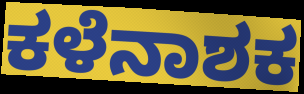
ಕಳೆನಾಶಕ